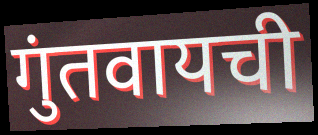
गुंतवायची